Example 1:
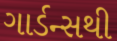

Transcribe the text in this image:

ગાર્ડન્સથી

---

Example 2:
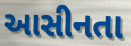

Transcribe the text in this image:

આસીનતા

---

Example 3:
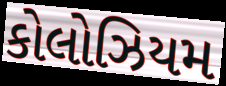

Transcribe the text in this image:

કોલોઝિયમ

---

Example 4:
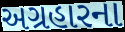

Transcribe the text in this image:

અગ્રહારના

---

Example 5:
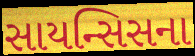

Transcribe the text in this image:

સાયન્સિસના